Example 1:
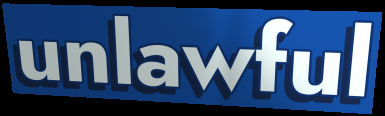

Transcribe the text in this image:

unlawful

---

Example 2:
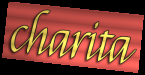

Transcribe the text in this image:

charita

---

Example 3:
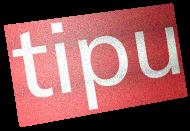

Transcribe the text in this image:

tipu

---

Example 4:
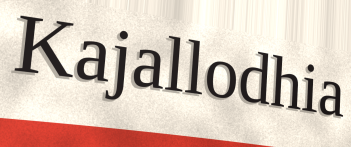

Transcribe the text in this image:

Kajallodhia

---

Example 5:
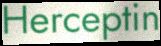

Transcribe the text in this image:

Herceptin